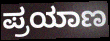
ಪ್ರಯಾಣ